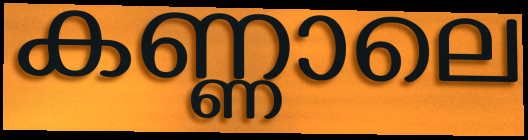
കണ്ണാലെ